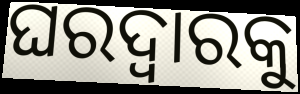
ଘରଦ୍ୱାରକୁ